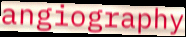
angiography